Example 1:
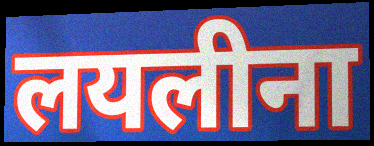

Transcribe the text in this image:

लयलीना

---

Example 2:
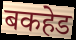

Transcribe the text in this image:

बकहेड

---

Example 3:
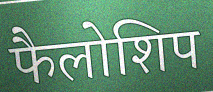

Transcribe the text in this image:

फैलोशिप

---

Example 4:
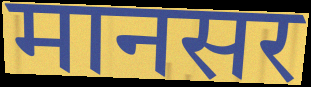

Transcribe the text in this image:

मानसर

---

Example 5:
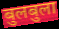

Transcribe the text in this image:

बुलबुला